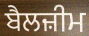
ਬੈਲਜ਼ੀਮ